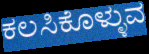
ಕಲಸಿಕೊಳ್ಳುವ